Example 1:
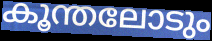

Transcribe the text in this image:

കൂന്തലോടും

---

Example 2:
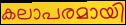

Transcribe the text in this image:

കലാപരമായി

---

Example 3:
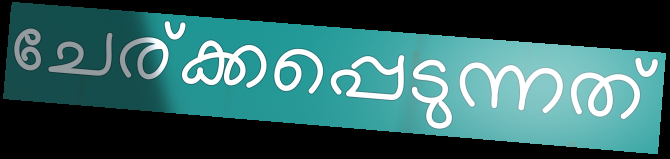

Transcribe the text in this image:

ചേര്ക്കപ്പെടുന്നത്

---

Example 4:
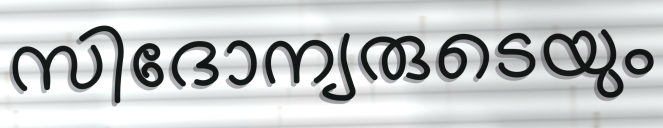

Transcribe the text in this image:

സിദോന്യരുടെയും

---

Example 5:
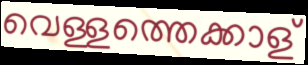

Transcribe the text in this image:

വെള്ളത്തെക്കാള്